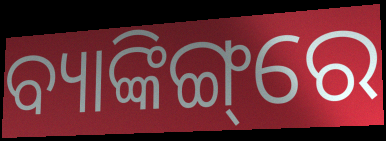
ବ୍ୟାଙ୍କିଙ୍ଗ୍‌ରେ